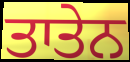
ਤਾਤੇਨ